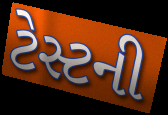
ટેસ્ટની